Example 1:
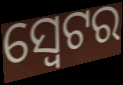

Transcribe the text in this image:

ସ୍ଵେଟର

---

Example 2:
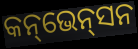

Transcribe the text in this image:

କନ୍‌ଭେନ୍‌ସନ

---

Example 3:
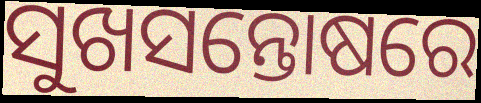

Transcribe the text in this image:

ସୁଖସନ୍ତୋଷରେ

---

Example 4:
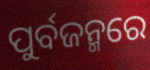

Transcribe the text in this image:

ପୁର୍ବଜନ୍ମରେ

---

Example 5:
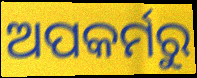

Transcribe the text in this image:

ଅପକର୍ମରୁ